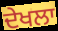
ਦੇਖਲਾ